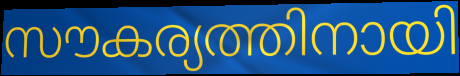
സൗകര്യത്തിനായി